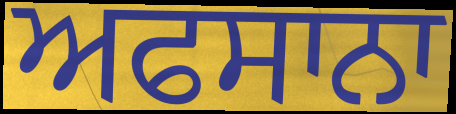
ਅਫਸਾਨਾ